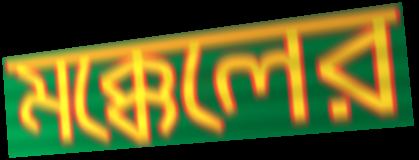
মক্কেলের